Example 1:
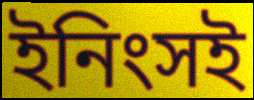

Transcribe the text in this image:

ইনিংসই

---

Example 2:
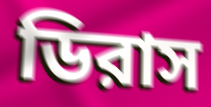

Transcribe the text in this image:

ডিরাস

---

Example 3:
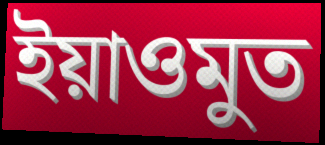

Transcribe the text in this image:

ইয়াওমুত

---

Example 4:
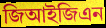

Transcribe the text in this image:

জিআইজিএন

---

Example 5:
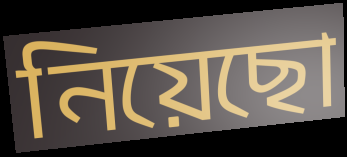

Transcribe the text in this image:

নিয়েছো